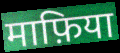
माफ़िया